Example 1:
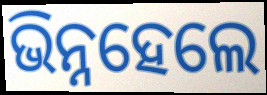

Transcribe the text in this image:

ଭିନ୍ନହେଲେ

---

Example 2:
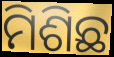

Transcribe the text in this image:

ମିଶିଛ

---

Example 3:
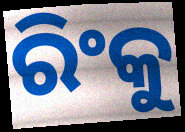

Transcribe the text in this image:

ରିଂକୁ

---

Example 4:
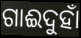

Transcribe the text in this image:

ଗାଈଦୁହାଁ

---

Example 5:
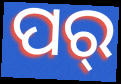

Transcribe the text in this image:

ପର୍